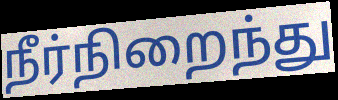
நீர்நிறைந்து